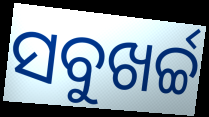
ସବୁଖର୍ଚ୍ଚ